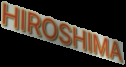
HIROSHIMA